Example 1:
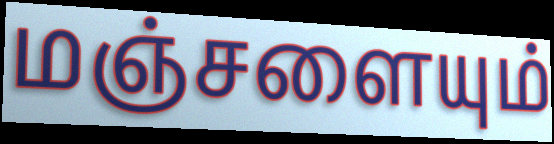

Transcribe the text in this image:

மஞ்சளையும்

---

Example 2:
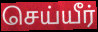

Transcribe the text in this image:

செய்யீர்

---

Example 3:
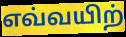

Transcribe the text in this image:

எவ்வயிற்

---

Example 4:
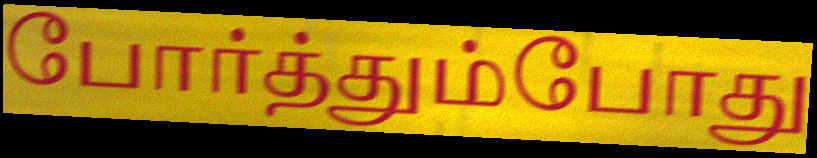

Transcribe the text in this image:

போர்த்தும்போது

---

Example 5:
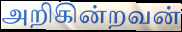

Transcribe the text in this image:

அறிகின்றவன்